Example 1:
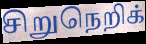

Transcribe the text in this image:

சிறுநெறிக்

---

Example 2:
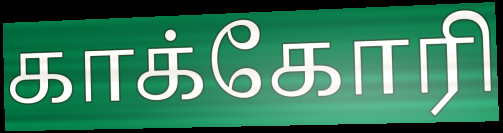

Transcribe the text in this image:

காக்கோரி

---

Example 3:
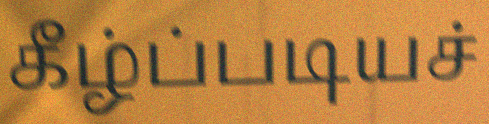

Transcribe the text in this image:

கீழ்ப்படியச்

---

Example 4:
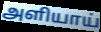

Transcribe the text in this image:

அளியாய்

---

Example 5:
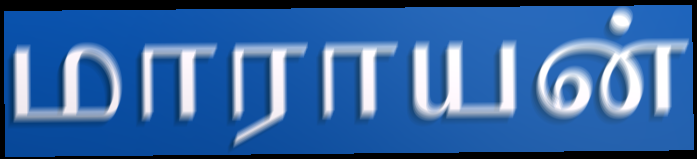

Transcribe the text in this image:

மாராயன்